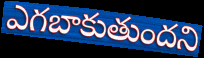
ఎగబాకుతుందని